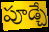
పూడ్చే